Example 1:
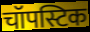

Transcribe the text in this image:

चॉपस्टिक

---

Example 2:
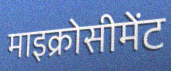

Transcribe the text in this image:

माइक्रोसीमेंट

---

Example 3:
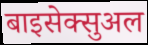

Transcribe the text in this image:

बाइसेक्सुअल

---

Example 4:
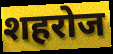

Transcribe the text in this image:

शहरोज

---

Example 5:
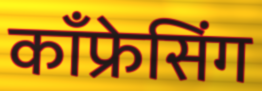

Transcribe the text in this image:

कॉंफ्रेसिंग